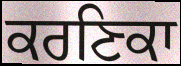
ਕਰਣਿਕਾ